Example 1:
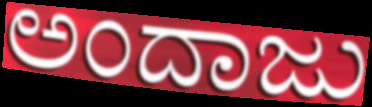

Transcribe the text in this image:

ಅಂದಾಜು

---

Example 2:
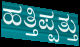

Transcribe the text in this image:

ಹತ್ತಿಪ್ಪತ್ತು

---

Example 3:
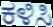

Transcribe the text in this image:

ಕಳಿಸಿ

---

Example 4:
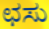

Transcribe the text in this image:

ಛಸು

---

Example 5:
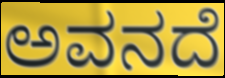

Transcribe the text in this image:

ಅವನದೆ